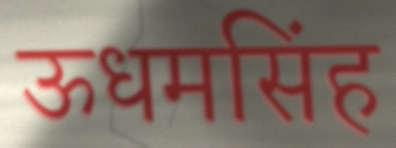
ऊधमसिंह